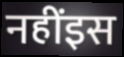
नहींइस